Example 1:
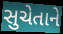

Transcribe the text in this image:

સુચેતાને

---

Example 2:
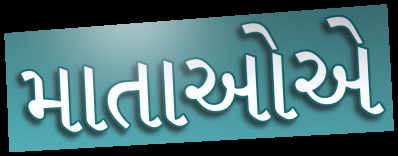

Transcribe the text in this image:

માતાઓએ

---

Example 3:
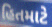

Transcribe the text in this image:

હિતમાટે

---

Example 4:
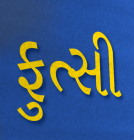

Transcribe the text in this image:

ફુત્સી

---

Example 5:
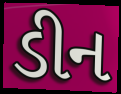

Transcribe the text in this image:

ડીન